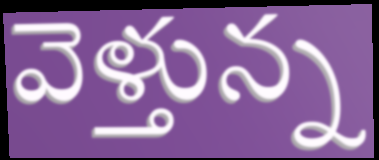
వెళ్తున్న